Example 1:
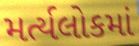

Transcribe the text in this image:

મર્ત્યલોકમાં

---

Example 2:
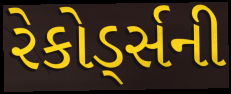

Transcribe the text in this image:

રેકોર્ડ્સની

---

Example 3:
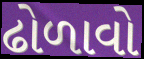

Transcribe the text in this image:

ઢોળાવો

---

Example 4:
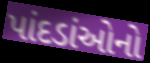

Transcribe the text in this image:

પાંદડાંઓનો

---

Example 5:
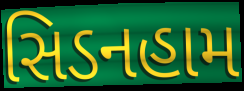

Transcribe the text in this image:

સિડનહામ